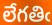
లేగతిఁ